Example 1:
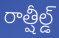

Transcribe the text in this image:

రాత్షీల్డ్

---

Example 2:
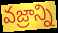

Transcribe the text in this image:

వజ్రాన్ని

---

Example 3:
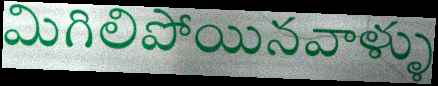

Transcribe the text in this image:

మిగిలిపోయినవాళ్ళు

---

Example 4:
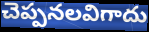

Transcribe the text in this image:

చెప్పనలవిగాదు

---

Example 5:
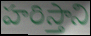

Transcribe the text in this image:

హరిస్తాని